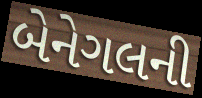
બેનેગલની